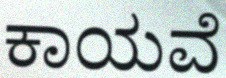
ಕಾಯವೆ